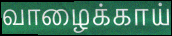
வாழைக்காய்